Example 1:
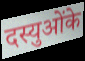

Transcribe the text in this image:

दस्युओंके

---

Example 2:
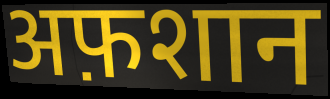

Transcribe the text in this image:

अफ़शान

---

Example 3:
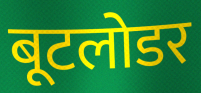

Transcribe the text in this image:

बूटलोडर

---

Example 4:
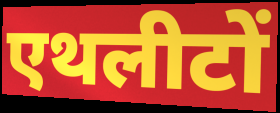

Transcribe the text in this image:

एथलीटों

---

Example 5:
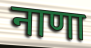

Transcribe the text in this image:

नाणा